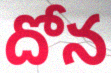
దోన